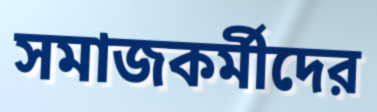
সমাজকর্মীদের